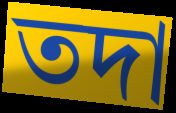
তদা